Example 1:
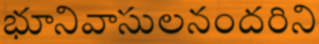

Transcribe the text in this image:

భూనివాసులనందరిని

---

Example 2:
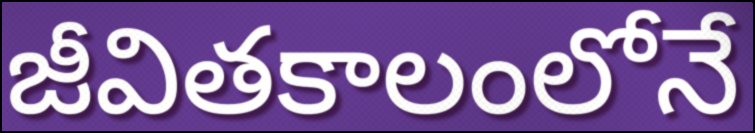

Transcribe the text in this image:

జీవితకాలంలోనే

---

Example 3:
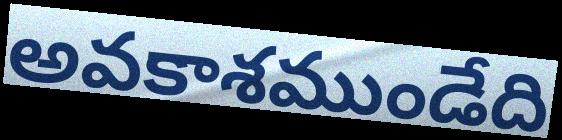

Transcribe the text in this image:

అవకాశముండేది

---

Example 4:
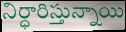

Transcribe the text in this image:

నిర్ధారిస్తున్నాయి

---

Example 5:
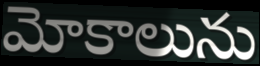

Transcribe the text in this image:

మోకాలును